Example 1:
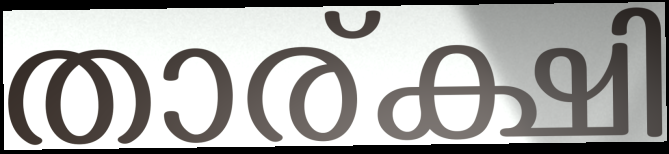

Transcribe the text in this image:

താര്ക്ഷി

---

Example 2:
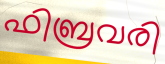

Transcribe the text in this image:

ഫിബ്രവരി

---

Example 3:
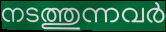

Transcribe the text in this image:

നടത്തുന്നവർ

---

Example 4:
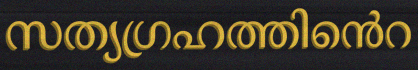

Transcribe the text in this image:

സത്യഗ്രഹത്തിൻെറ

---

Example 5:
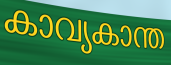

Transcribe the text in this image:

കാവ്യകാന്ത